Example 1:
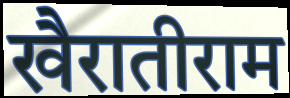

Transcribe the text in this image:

खैरातीराम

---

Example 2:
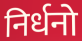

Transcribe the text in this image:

निर्धनो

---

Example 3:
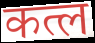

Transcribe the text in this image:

कत्ल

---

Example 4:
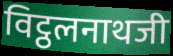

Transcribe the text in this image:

विट्ठलनाथजी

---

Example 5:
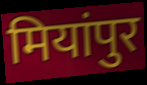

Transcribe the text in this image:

मियांपुर